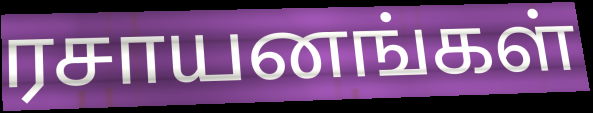
ரசாயனங்கள்